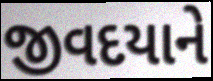
જીવદયાને